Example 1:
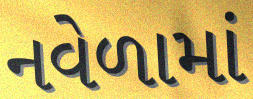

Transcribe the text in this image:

નવેળામાં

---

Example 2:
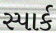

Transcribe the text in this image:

સ્પાર્ક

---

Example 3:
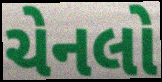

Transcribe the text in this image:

ચેનલો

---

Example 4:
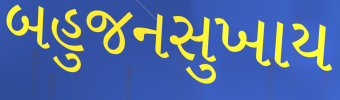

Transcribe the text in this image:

બહુજનસુખાય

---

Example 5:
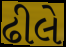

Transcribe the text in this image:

ઢીલે